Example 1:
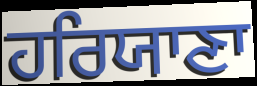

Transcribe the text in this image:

ਹਰਿਯਾਣਾ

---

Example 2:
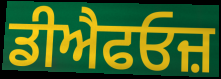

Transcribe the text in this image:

ਡੀਐਫਓਜ਼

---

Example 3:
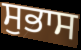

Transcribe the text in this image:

ਸੁਭਾਸ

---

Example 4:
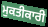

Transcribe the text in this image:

ਮੁਕਤੀਕਾਰੀ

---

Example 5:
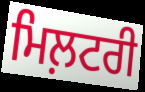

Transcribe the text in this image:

ਮਿਲ਼ਟਰੀ